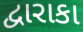
દ્વારાકા